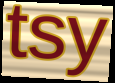
tsy